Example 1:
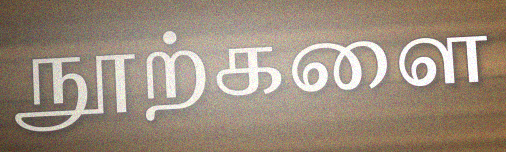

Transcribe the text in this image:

நூற்களை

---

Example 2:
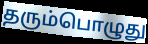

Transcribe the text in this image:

தரும்பொழுது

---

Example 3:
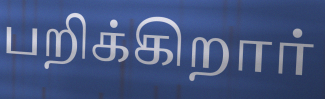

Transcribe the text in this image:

பறிக்கிறார்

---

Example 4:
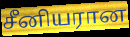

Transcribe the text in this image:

சீனியரான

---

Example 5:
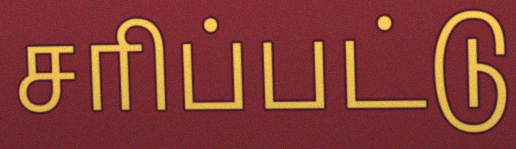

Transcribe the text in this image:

சரிப்பட்டு